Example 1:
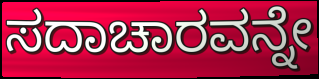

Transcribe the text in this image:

ಸದಾಚಾರವನ್ನೇ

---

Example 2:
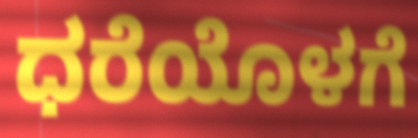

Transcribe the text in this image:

ಧರೆಯೊಳಗೆ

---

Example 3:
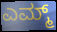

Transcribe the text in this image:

ಎಮ್ಮ್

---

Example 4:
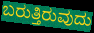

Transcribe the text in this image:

ಬರುತ್ತಿರುವುದು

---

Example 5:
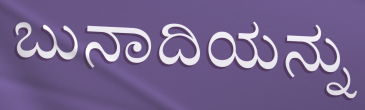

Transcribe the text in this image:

ಬುನಾದಿಯನ್ನು